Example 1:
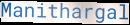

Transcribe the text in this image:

Manithargal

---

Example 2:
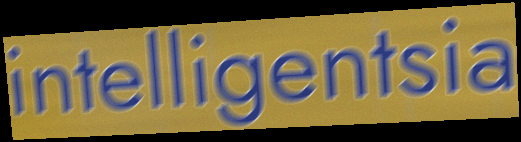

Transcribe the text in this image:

intelligentsia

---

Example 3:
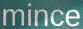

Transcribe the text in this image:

mince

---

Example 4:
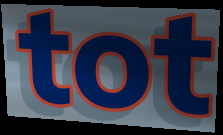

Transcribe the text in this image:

tot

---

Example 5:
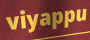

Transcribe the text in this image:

viyappu